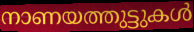
നാണയത്തുട്ടുകൾ